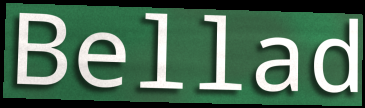
Bellad